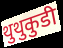
थुथुकुडी